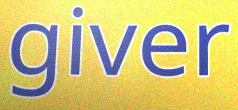
giver